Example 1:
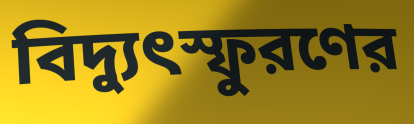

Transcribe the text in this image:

বিদ্যুৎস্ফুরণের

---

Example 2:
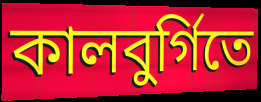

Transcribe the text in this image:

কালবুর্গিতে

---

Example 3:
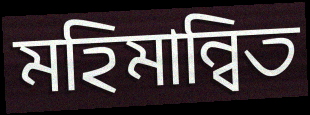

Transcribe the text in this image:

মহিমান্বিত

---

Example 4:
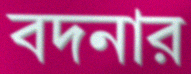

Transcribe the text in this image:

বদনার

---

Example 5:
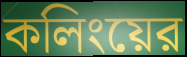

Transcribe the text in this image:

কলিংয়ের